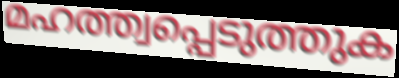
മഹത്ത്വപ്പെടുത്തുക